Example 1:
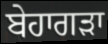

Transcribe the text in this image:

ਬੇਹਾਗੜਾ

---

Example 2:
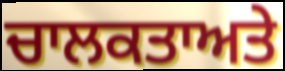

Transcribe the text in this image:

ਚਾਲਕਤਾਅਤੇ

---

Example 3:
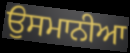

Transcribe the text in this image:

ਉਸਮਾਨੀਆ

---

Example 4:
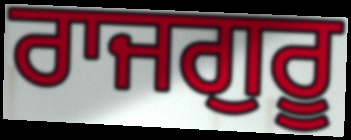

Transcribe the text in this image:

ਰਾਜਗੁਰੂ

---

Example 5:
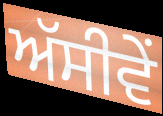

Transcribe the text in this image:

ਅੱਸੀਵੇਂ